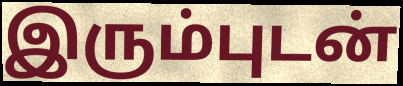
இரும்புடன்